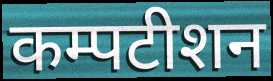
कम्पटीशन